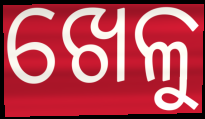
ଖେଳୁ